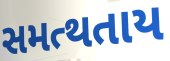
સમત્થતાય